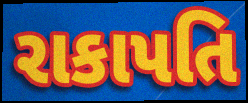
રાકાપતિ